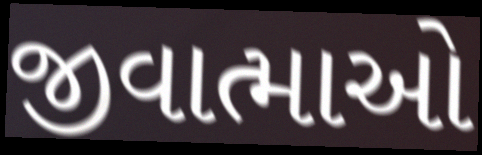
જીવાત્માઓ